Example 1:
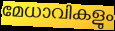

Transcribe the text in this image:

മേധാവികളും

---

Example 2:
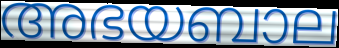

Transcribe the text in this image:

അഭയബാല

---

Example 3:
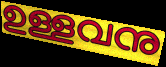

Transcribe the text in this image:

ഉള്ളവനു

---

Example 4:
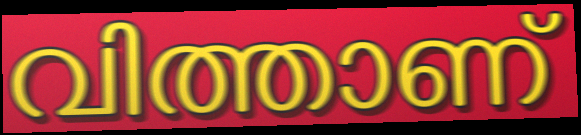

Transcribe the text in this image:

വിത്താണ്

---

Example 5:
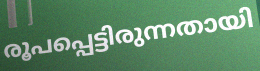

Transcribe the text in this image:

രൂപപ്പെട്ടിരുന്നതായി